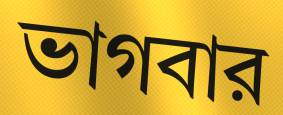
ভাগবার